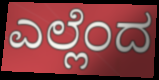
ಎಲ್ಲೆಂದ